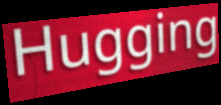
Hugging